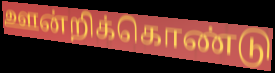
ஊன்றிக்கொண்டு